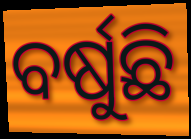
ବର୍ଷୁଛି